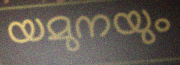
യമുനയും